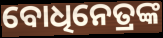
ବୋଧିନେତ୍ରଙ୍କ